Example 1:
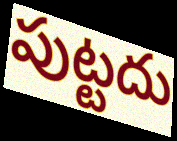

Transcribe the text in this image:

పుట్టదు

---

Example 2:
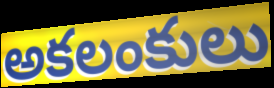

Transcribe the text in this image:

అకలంకులు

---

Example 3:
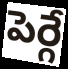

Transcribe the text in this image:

పెర్గే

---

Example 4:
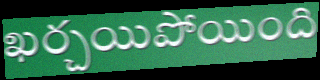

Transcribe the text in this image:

ఖర్చయిపోయింది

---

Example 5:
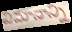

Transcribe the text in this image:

విమానాన్ని